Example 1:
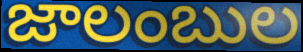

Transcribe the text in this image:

జాలంబుల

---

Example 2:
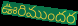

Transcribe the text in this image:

ఊరిముందర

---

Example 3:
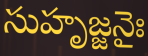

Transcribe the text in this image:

సుహృజ్జనైః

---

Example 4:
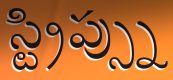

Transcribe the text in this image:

స్ట్రిప్స్ను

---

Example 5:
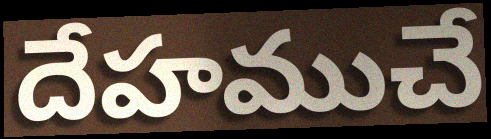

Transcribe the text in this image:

దేహముచే